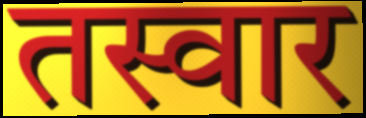
तस्वार